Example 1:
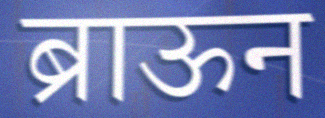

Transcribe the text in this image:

ब्राऊन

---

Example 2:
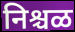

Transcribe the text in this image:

निश्चळ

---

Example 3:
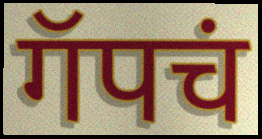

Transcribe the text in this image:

गॅपचं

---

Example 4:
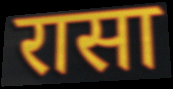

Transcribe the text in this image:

रासा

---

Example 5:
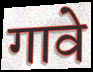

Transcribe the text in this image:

गावे